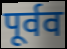
पूर्वव